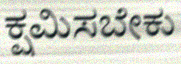
ಕ್ಷಮಿಸಬೇಕು